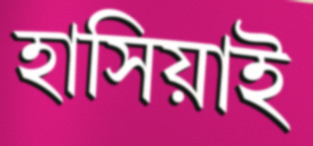
হাসিয়াই